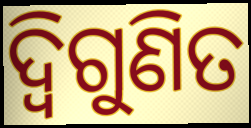
ଦ୍ଵିଗୁଣିତ